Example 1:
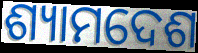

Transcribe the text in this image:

ଶ୍ୟାମଦେଶ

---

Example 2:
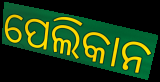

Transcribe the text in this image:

ପେଲିକାନ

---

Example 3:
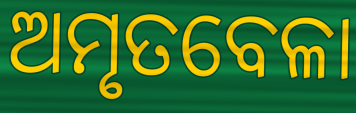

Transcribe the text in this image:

ଅମୃତବେଳା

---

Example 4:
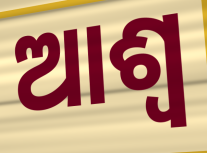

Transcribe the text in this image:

ଆଶ୍ୱ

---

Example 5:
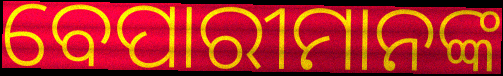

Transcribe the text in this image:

ବେପାରୀମାନଙ୍କ